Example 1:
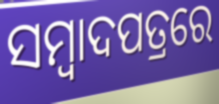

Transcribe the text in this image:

ସମ୍ୱାଦପତ୍ରରେ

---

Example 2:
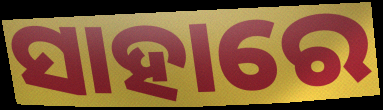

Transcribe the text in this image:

ସାହାରେ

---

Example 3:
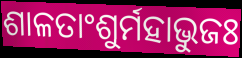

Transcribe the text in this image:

ଶାଳତାଂଶୁର୍ମହାଭୁଜଃ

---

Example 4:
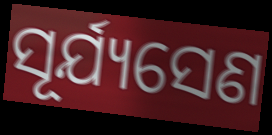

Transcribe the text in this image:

ସୂର୍ଯ୍ୟସେଣ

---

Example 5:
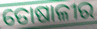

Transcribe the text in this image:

ତୋଷାଳୀର